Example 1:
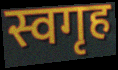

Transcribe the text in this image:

स्वगृह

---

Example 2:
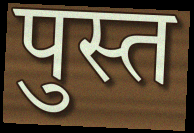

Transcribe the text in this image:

पुस्त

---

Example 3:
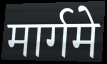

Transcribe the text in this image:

मार्गमे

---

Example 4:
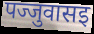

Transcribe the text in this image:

पज्जुवासइ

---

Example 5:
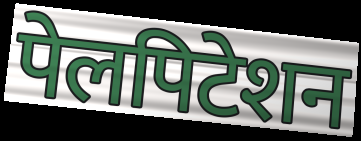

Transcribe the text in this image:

पेलपिटेशन